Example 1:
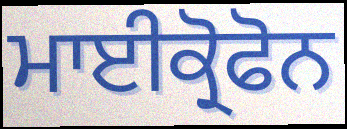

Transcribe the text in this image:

ਮਾਈਕ੍ਰੋਫੋਨ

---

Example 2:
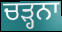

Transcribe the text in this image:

ਚੜ੍ਹਨਾ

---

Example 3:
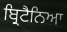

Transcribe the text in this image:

ਬ੍ਰਿਟੈਨਿਆ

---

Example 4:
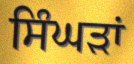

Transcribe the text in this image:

ਸਿੰਘੜਾਂ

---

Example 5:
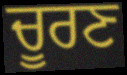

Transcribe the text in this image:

ਚੂਰਣ